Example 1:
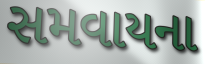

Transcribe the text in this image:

સમવાયના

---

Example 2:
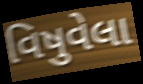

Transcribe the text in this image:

વિષુવેલા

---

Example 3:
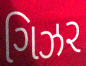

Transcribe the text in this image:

ગિઝર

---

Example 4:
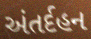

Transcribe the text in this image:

અંતર્દહન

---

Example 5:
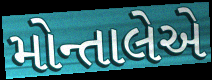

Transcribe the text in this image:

મોન્તાલેએ